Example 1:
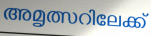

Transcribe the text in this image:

അമൃത്സറിലേക്ക്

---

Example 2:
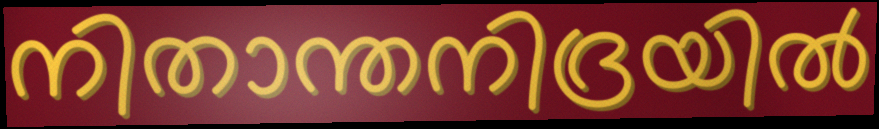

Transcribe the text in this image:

നിതാന്തനിദ്രയിൽ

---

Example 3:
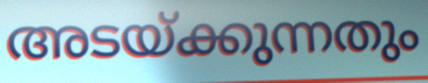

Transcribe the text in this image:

അടയ്ക്കുന്നതും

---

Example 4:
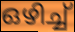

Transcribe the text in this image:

ഒഴിച്ച്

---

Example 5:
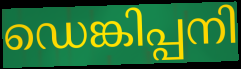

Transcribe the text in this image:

ഡെങ്കിപ്പനി